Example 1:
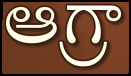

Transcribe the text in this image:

ఆగ్రా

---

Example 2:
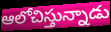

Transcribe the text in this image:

ఆలోచిస్తున్నాడు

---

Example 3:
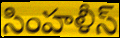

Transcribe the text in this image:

సింహళీస్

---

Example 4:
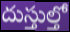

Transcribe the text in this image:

దుస్తుల్తో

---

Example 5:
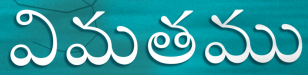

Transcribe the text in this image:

విమతము